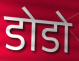
डोडो